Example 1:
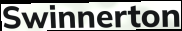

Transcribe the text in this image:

Swinnerton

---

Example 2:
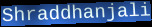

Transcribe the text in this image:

Shraddhanjali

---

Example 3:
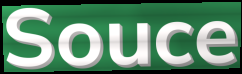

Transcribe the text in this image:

Souce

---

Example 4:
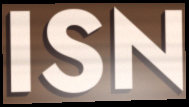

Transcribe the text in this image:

ISN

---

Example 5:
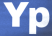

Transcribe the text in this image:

Yp